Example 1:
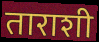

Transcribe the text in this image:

ताराशी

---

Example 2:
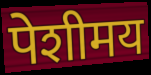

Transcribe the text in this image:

पेशीमय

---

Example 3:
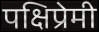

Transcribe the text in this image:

पक्षिप्रेमी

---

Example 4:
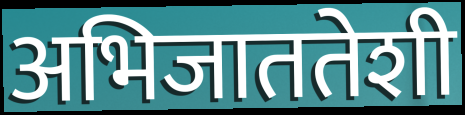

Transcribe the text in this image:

अभिजाततेशी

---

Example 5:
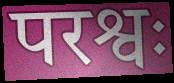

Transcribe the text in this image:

परश्वः